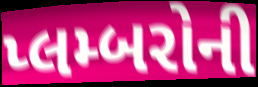
પ્લમ્બરોની